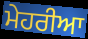
ਮੇਹਰੀਆ